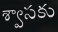
శ్వాసకు